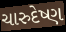
ચારુદેષ્ણ